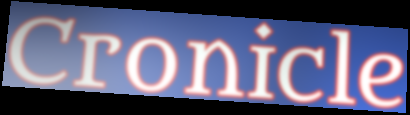
Cronicle